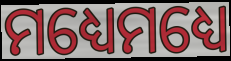
ମଧ୍ୟେମଧ୍ୟେ